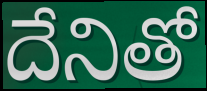
దేనితో